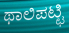
ಥಾಲಿಪಟ್ಟಿ